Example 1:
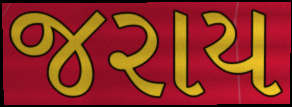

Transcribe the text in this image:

જરાય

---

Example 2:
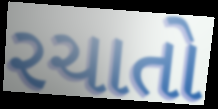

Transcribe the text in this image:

રચાતો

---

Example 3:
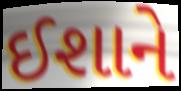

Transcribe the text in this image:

ઈશાને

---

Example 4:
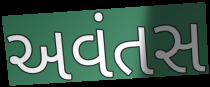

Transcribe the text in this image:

અવંતસ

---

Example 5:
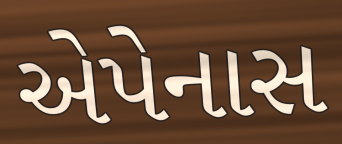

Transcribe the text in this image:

એપેનાસ